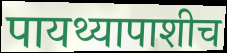
पायथ्यापाशीच